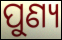
ପୁଣ୍ୟ